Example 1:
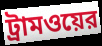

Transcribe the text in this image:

ট্রামওয়ের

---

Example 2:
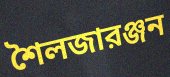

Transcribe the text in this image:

শৈলজারঞ্জন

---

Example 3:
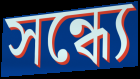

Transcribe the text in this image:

সন্ধ্যে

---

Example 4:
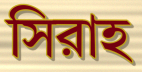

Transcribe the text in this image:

সিরাহ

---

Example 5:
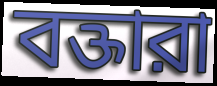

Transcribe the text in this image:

বক্তারা